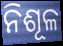
ନିଶୂଳ